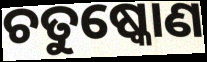
ଚତୁଷ୍କୋଣ